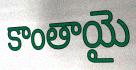
కాంతాయై